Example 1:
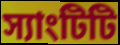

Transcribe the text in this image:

স্যাংটিটি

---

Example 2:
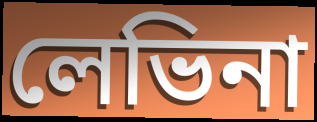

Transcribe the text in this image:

লেভিনা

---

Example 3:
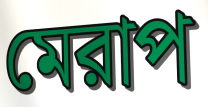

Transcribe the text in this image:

মেরাপ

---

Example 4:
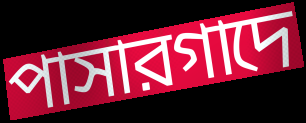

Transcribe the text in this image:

পাসারগাদে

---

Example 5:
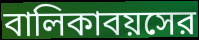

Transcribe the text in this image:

বালিকাবয়সের